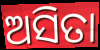
ଅସିତା